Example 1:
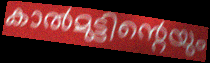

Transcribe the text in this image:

കാൽമുട്ടിന്റെയും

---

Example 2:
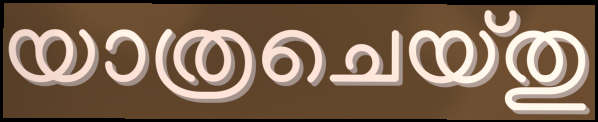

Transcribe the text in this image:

യാത്രചെയ്തു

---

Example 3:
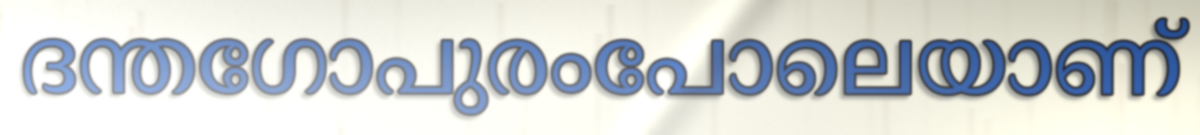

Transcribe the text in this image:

ദന്തഗോപുരംപോലെയാണ്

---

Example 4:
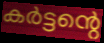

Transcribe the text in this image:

കർട്ടന്റെ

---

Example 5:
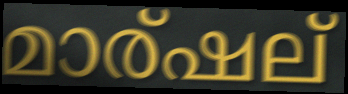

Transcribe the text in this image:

മാര്ഷല്